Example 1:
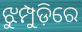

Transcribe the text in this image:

ଝୁମ୍ପୁଡ଼ିରେ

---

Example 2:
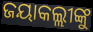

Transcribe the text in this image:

ଜୟାକଲ୍ଲୀଙ୍କୁ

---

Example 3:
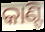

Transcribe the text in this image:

କାଣ୍ଟି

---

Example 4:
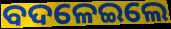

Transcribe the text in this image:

ବଦଳେଇଲେ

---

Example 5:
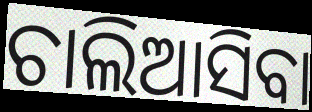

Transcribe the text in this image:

ଚାଲିଆସିବା